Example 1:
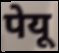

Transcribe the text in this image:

पेयू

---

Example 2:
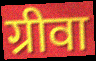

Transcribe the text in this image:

ग्रीवा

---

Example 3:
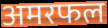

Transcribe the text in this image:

अमरफल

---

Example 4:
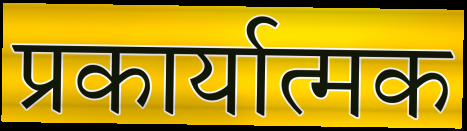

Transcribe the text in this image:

प्रकार्यात्मक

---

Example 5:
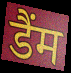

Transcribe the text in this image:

डैंम